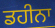
ਡਹੀਨਾ